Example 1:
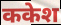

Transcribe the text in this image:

ककेश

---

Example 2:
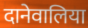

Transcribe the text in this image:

दानेवालिया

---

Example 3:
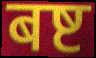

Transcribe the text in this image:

बष्ट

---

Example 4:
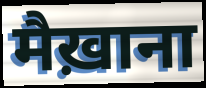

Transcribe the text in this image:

मैख़ाना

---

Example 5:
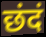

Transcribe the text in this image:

छंदं